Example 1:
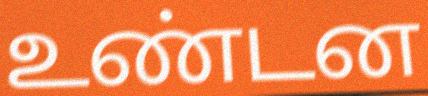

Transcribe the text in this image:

உண்டன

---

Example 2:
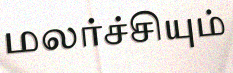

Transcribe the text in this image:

மலர்ச்சியும்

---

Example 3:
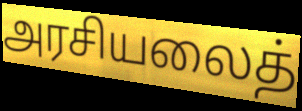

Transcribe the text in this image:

அரசியலைத்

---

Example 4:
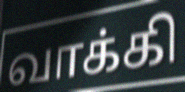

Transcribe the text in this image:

வாக்கி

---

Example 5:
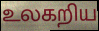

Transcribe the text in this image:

உலகறிய